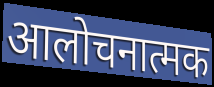
आलोचनात्मक